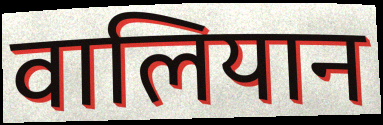
वालियान